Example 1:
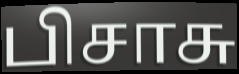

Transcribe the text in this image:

பிசாசு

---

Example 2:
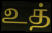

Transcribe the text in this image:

உத்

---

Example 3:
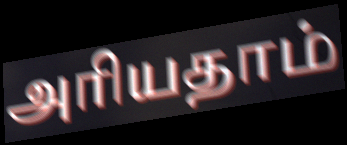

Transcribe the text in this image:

அரியதாம்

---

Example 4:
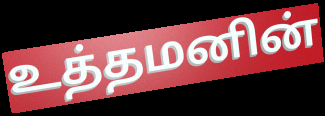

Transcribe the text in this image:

உத்தமனின்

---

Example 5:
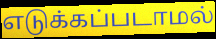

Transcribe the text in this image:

எடுக்கப்படாமல்